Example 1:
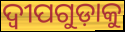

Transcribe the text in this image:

ଦ୍ୱୀପଗୁଡ଼ାକୁ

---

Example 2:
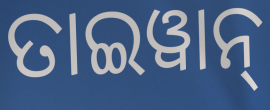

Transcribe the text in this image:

ତାଇୱାନ୍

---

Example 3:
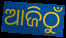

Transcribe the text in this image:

ଆଜିଠୁଁ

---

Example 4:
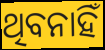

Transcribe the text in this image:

ଥିବନାହିଁ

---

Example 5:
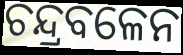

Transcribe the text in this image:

ଚନ୍ଦ୍ରବଳେନ